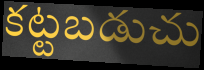
కట్టబడుచు